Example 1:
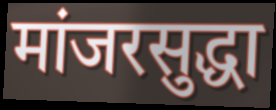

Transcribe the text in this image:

मांजरसुद्धा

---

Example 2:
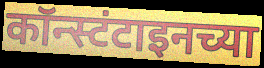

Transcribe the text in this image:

कॉन्स्टंटाइनच्या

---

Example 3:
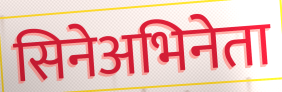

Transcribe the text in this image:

सिनेअभिनेता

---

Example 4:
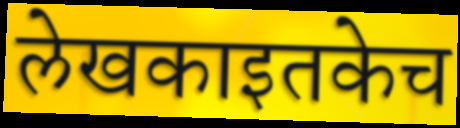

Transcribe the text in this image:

लेखकाइतकेच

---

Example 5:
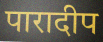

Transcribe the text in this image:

पारादीप